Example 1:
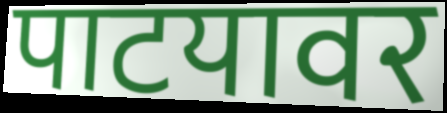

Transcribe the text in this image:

पाटयावर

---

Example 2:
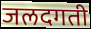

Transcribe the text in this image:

जलदगती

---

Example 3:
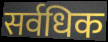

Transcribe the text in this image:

सर्वधिक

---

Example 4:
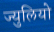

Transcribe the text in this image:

ज्युलियो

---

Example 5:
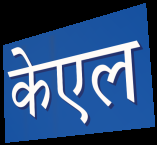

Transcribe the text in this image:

केएल